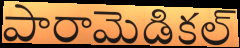
పారామెడికల్